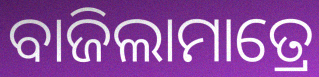
ବାଜିଲାମାତ୍ରେ